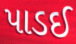
પાડઈ